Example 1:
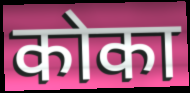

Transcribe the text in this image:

कोका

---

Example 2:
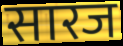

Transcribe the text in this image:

सारज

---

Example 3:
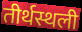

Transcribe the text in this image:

तीर्थस्थली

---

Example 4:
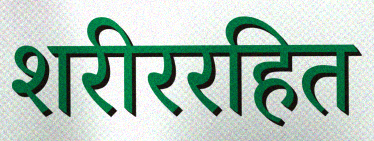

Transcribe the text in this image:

शरीररहित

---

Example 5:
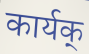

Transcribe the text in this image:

कार्यक्